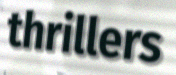
thrillers